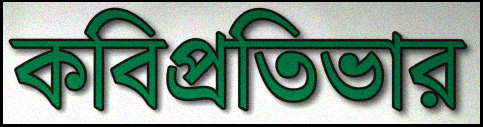
কবিপ্রতিভার